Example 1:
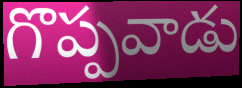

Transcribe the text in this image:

గొప్పవాడు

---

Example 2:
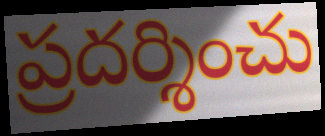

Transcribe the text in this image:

ప్రదర్శించు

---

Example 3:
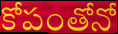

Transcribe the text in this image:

కోపంతోనో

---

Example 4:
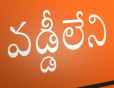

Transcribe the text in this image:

వడ్డీలేని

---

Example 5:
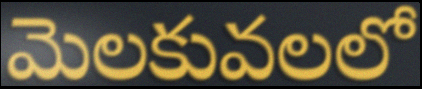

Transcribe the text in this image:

మెలకువలలో